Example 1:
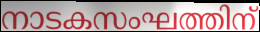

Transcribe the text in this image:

നാടകസംഘത്തിന്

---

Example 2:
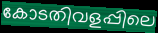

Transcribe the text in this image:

കോടതിവളപ്പിലെ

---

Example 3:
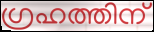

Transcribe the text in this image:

ഗ്രഹത്തിന്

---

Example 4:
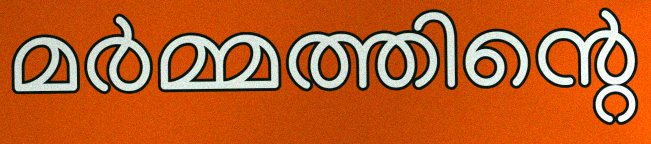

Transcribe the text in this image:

മർമ്മത്തിന്റെ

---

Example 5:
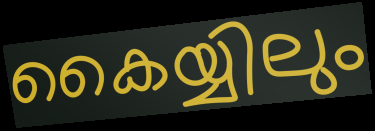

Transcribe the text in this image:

കൈയ്യിലും